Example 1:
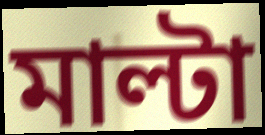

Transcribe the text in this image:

মাল্টা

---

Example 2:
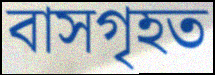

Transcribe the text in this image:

বাসগৃহত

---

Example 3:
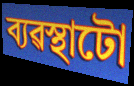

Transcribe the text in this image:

ব্যৱস্থাটো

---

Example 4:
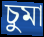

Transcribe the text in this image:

চুমা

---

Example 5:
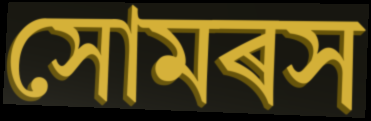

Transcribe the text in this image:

সোমৰস